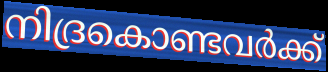
നിദ്രകൊണ്ടവർക്ക്